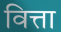
वित्ता